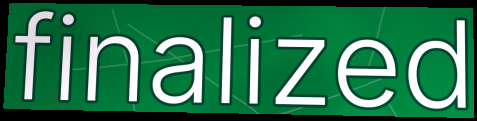
finalized